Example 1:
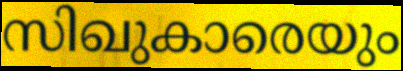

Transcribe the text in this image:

സിഖുകാരെയും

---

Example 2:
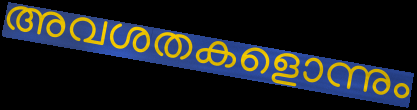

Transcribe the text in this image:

അവശതകളൊന്നും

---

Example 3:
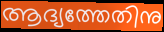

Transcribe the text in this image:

ആദ്യത്തേതിനു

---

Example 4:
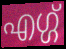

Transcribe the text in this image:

എഗ്ഗ്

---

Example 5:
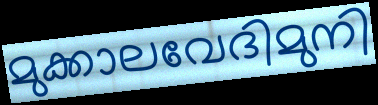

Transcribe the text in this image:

മുക്കാലവേദിമുനി